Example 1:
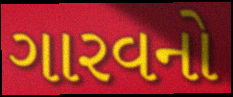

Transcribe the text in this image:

ગારવનો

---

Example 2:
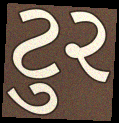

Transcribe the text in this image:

ટુર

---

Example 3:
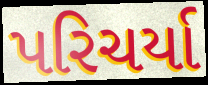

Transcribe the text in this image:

પરિચર્યા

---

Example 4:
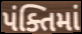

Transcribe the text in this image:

પંક્તિમાં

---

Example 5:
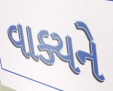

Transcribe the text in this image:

વાક્યને